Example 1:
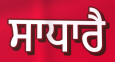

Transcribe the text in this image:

ਸਾਧਾਰੈ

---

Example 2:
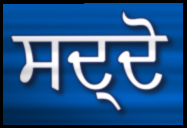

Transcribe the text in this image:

ਸਦ੍ਦੋ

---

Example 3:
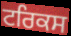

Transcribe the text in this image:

ਟਰਿਕਸ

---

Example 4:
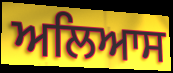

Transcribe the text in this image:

ਅਲਿਆਸ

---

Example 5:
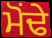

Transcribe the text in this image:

ਮੋਂਢੇ